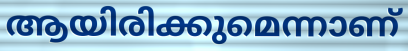
ആയിരിക്കുമെന്നാണ്